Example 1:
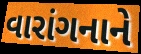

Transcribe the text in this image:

વારાંગનાને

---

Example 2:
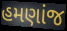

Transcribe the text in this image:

હમણાંજ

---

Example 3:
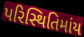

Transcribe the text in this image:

પરિસ્થિતિમાંય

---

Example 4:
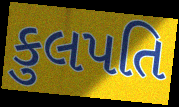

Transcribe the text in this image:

કુલપતિ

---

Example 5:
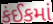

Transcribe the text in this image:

કંઈકમાં